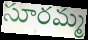
సూరమ్మ